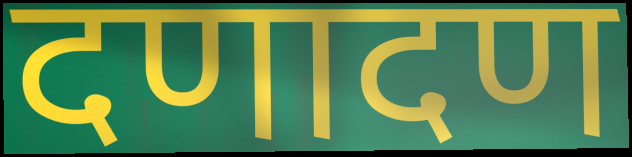
दणादण